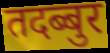
तदब्बुर